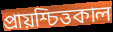
প্রায়শ্চিত্তকাল